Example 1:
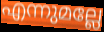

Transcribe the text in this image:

എന്നുമല്ലേ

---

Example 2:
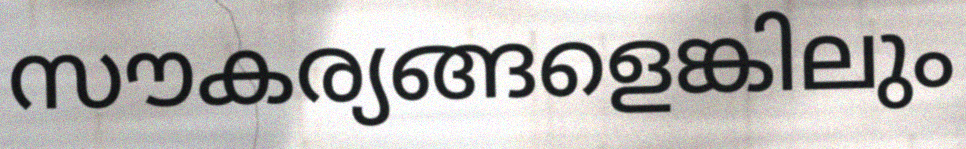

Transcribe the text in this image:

സൗകര്യങ്ങളെങ്കിലും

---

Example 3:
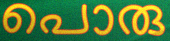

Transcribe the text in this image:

പൊരു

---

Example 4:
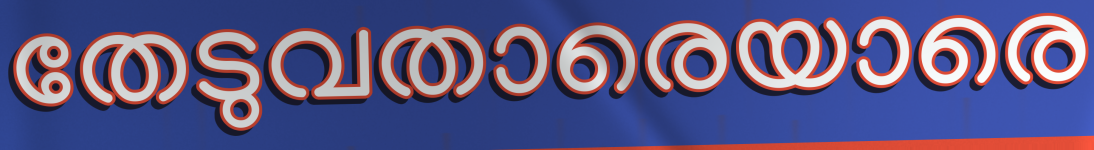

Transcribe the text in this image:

തേടുവതാരെയാരെ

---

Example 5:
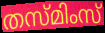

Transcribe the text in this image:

തസ്മിംസ്